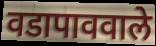
वडापाववाले